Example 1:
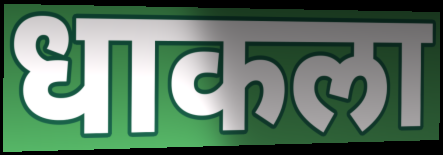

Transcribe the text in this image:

धाकला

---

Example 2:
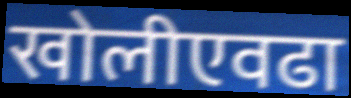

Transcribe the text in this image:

खोलीएवढा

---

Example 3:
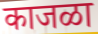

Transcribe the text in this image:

काजळा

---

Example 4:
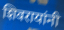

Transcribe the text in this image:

शिवरायांनी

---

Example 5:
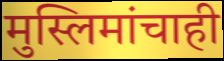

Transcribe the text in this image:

मुस्लिमांचाही